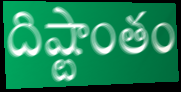
దిష్టాంతం